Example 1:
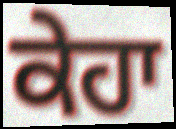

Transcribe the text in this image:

ਕੇਹਾ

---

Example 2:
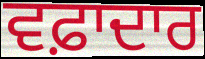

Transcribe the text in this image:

ਵਫ਼ਾਦਾਰ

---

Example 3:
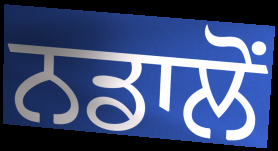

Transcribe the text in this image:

ਨਡਾਲੋਂ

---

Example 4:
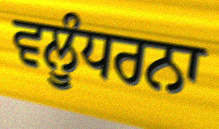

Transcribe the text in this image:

ਵਲੂੰਧਰਨਾ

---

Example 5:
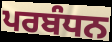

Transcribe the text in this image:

ਪਰਬੰਧਨ